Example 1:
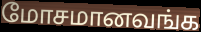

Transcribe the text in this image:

மோசமானவங்க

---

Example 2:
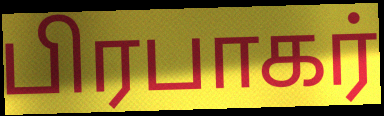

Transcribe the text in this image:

பிரபாகர்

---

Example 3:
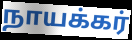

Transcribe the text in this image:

நாயக்கர்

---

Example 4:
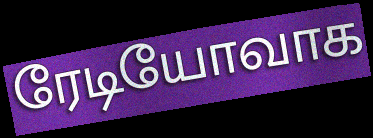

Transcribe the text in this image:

ரேடியோவாக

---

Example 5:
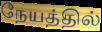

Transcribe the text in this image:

நேயத்தில்